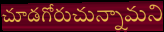
చూడగోరుచున్నామని